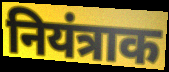
नियंत्राक